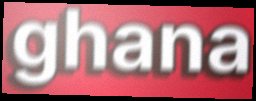
ghana